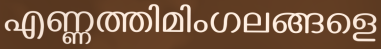
എണ്ണത്തിമിംഗലങ്ങളെ